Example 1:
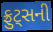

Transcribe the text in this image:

ફ્રુટ્સની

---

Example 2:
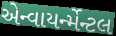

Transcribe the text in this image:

એન્વાયર્ન્મેન્ટલ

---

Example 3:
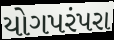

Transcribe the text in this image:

યોગપરંપરા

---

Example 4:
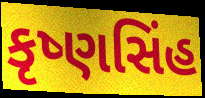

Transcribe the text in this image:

કૃષ્ણસિંહ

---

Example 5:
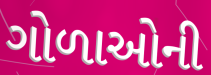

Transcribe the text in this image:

ગોળાઓની